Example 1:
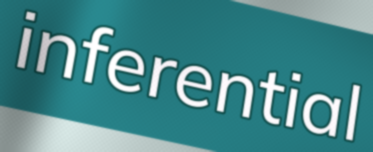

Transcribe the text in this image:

inferential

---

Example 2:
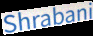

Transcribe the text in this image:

Shrabani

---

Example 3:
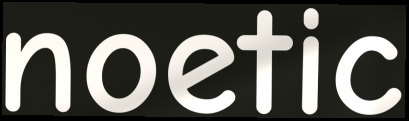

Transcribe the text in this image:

noetic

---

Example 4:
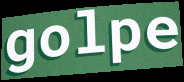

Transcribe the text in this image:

golpe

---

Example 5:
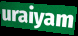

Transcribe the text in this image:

uraiyam